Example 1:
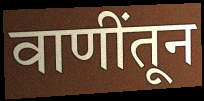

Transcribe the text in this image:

वाणींतून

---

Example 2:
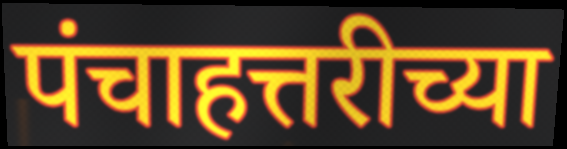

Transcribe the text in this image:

पंचाहत्तरीच्या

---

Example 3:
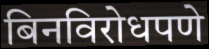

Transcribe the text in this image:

बिनविरोधपणे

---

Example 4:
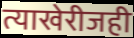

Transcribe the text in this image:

त्याखेरीजही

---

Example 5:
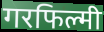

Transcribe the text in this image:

गरफिल्मी